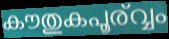
കൗതുകപൂര്വ്വം